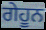
ਗੇਹੂਨ